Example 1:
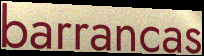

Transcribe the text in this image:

barrancas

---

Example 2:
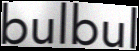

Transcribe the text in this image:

bulbul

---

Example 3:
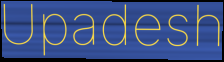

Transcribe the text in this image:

Upadesh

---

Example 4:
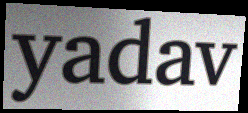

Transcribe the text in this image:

yadav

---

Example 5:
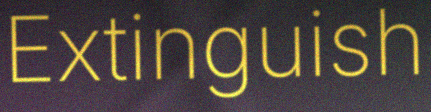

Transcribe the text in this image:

Extinguish